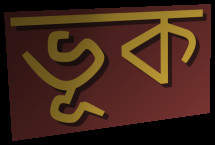
ভূক